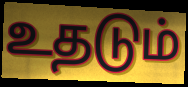
உதடும்